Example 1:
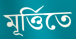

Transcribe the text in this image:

মূর্ত্তিতে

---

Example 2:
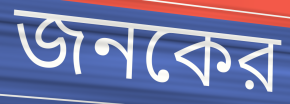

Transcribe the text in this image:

জনকের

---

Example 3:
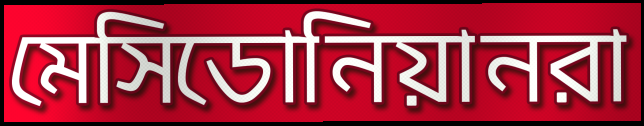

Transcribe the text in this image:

মেসিডোনিয়ানরা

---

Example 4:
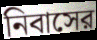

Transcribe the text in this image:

নিবাসের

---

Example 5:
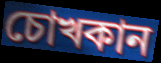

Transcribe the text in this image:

চোখকান